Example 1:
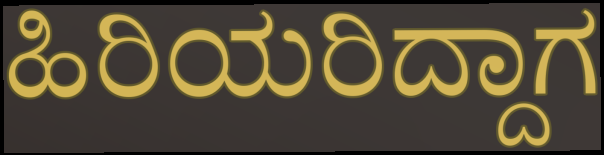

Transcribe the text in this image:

ಹಿರಿಯರಿದ್ದಾಗ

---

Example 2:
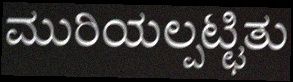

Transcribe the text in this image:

ಮುರಿಯಲ್ಪಟ್ಟಿತು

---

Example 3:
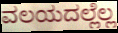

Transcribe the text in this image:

ವಲಯದಲ್ಲೆಲ್ಲ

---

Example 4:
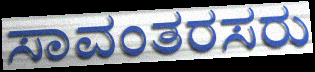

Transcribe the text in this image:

ಸಾವಂತರಸರು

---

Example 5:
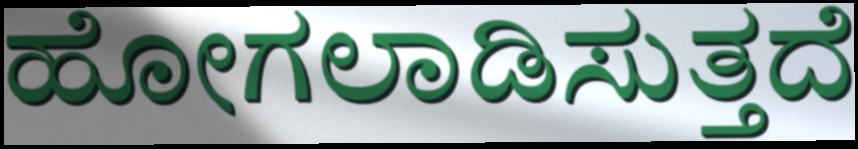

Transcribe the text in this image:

ಹೋಗಲಾಡಿಸುತ್ತದೆ